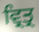
ਵ੍ਰਿਤ੍ਰ